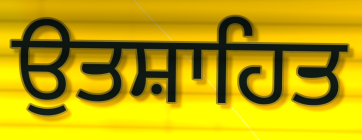
ਉੁਤਸ਼ਾਹਿਤ